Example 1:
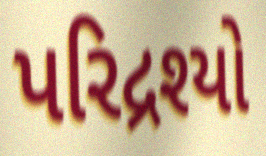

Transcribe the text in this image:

પરિદ્રશ્યો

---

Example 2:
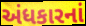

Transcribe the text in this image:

અંધકારનાં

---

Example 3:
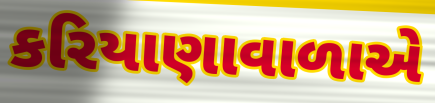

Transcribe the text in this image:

કરિયાણાવાળાએ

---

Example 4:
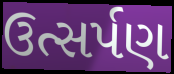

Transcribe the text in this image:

ઉત્સર્પણ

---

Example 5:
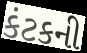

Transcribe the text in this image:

કંટકની